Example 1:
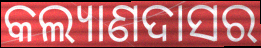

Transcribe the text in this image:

କଲ୍ୟାଣଦାସର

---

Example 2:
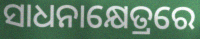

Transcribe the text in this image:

ସାଧନାକ୍ଷେତ୍ରରେ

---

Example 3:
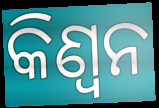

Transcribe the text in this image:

କିଣ୍ୱନ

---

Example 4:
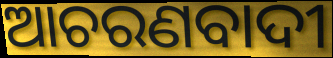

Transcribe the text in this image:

ଆଚରଣବାଦୀ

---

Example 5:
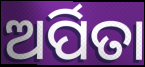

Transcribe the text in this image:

ଅର୍ପିତା